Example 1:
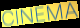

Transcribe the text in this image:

CINEMA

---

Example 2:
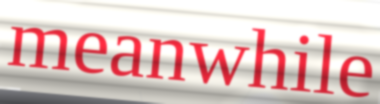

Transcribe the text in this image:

meanwhile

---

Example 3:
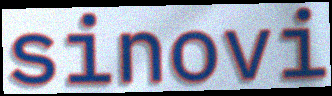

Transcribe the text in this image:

sinovi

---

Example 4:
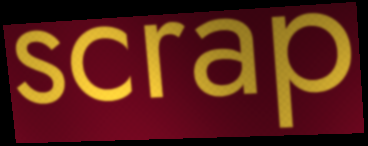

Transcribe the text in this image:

scrap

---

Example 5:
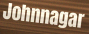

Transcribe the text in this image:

Johnnagar